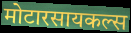
मोटारसायकल्स